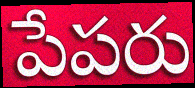
పేపరు